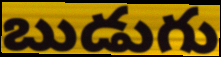
బుడుగు